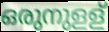
ഒരുനുളള്